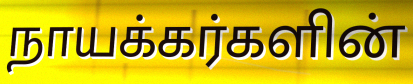
நாயக்கர்களின்